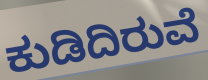
ಕುಡಿದಿರುವೆ